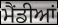
ਮੈਂਡੀਆਂ